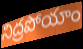
నిద్రపోయాం